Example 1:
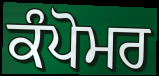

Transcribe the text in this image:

ਕੰਪੋਮਰ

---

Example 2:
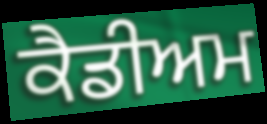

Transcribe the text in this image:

ਕੈਡੀਅਮ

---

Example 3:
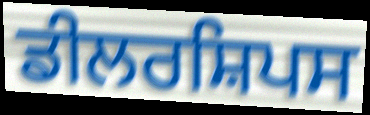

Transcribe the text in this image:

ਡੀਲਰਸ਼ਿਪਸ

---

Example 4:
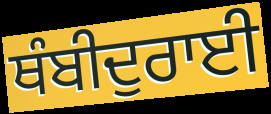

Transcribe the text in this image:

ਥੰਬੀਦੁਰਾਈ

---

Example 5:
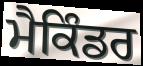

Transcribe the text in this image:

ਮੈਕਿੰਡਰ